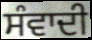
ਸੰਵਾਦੀ